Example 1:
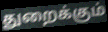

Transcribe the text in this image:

துறைக்கும்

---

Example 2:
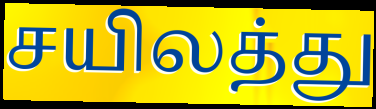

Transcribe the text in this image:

சயிலத்து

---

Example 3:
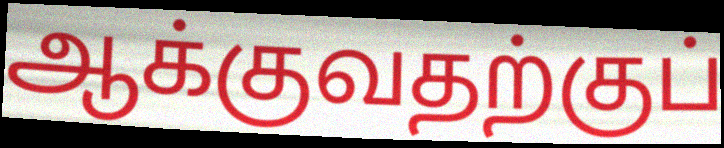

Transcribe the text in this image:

ஆக்குவதற்குப்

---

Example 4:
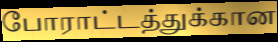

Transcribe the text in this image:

போராட்டத்துக்கான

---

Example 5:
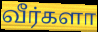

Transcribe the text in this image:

வீர்களா